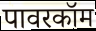
पावरकॉम